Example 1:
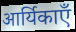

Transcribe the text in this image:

आर्यिकाएँ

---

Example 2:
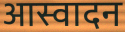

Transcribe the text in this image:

आस्वादन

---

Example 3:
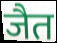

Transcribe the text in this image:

जैत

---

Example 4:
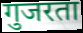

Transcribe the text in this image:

गुजरता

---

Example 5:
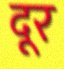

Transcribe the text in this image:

दूर